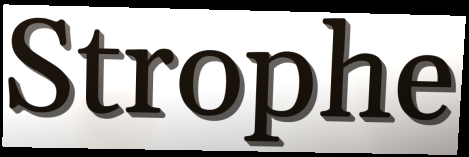
Strophe